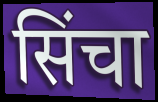
सिंचा